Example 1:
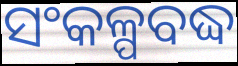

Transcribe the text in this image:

ସଂକଳ୍ପବଦ୍ଧ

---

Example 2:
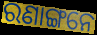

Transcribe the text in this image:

ରଣାଙ୍ଗନେ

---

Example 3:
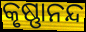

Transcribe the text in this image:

କୃଷ୍ଣାନନ୍ଦ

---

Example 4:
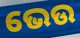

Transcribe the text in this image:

ଭେଉ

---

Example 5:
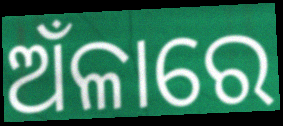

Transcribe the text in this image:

ଅଁଳାରେ